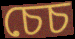
চেচ